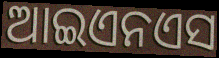
ଆଇଏନଏସ